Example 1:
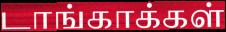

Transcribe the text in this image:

டாங்காக்கள்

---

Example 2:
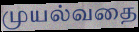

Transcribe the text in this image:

முயல்வதை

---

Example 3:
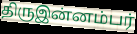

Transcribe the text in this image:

திருஇன்னம்பர்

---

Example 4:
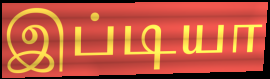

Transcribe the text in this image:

இப்டியா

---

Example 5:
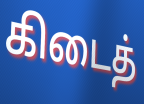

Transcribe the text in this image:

கிடைத்